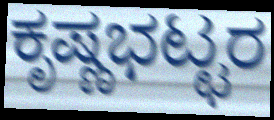
ಕೃಷ್ಣಭಟ್ಟರ